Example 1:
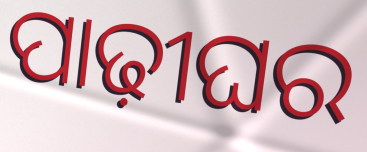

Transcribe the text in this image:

ପାଢ଼ୀଘର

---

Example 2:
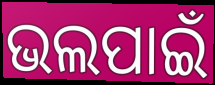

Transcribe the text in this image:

ଭଲପାଇଁ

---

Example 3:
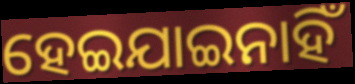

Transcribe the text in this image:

ହେଇଯାଇନାହିଁ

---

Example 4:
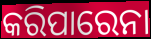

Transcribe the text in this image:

କରିପାରେନା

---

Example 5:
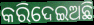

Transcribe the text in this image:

କରିଦେଇଅଛି